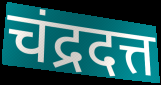
चंद्रदत्त